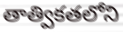
తాత్వికతలోని